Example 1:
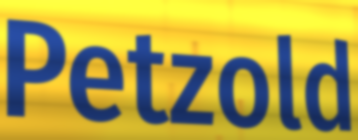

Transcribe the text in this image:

Petzold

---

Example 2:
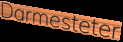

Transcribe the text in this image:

Darmesteter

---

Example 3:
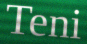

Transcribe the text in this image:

Teni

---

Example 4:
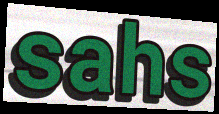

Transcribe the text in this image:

sahs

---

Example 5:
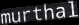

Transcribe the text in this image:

murthal